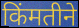
किंमतीने